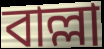
বাল্লা